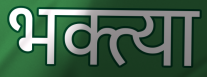
भक्त्या